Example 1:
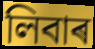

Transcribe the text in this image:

লিবাৰ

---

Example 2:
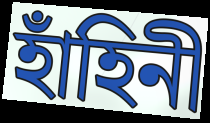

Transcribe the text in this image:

হাঁহিনী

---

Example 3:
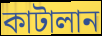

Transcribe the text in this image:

কাটালান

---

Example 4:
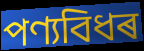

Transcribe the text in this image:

পণ্যবিধৰ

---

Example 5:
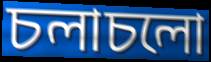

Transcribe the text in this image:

চলাচলো